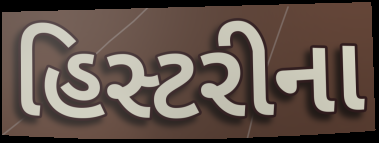
હિસ્ટરીના